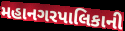
મહાનગરપાલિકાની